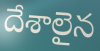
దేశాలైన